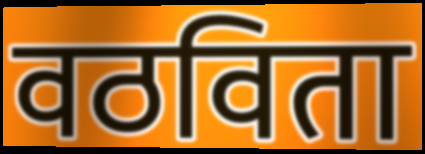
वठविता